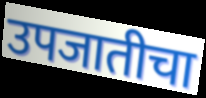
उपजातीचा